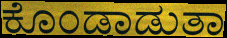
ಕೊಂಡಾಡುತಾ